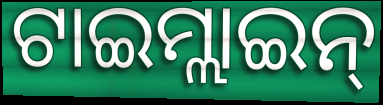
ଟାଇମ୍ଲାଇନ୍